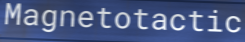
Magnetotactic